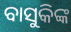
ବାସୁକିଙ୍କ